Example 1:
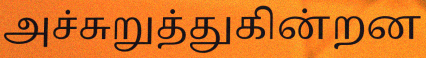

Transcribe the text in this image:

அச்சுறுத்துகின்றன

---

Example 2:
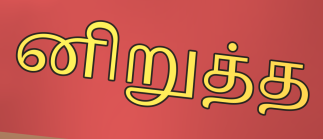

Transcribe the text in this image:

னிறுத்த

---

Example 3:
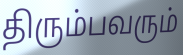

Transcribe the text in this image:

திரும்பவரும்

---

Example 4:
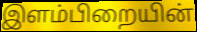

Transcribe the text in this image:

இளம்பிறையின்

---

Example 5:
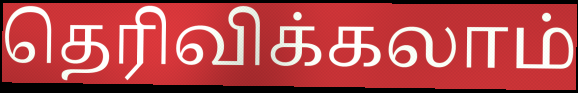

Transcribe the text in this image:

தெரிவிக்கலாம்